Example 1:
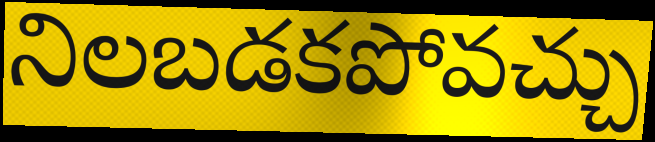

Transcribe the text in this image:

నిలబడకపోవచ్చు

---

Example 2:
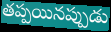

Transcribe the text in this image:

తప్పయినప్పుడు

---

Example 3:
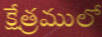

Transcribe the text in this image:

క్షేత్రములో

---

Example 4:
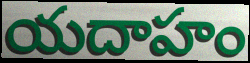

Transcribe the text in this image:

యదాహం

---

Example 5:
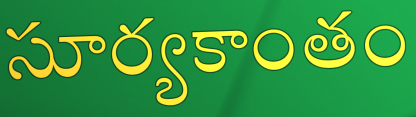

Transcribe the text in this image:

సూర్యకాంతం